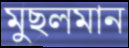
মুছলমান